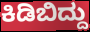
ಕಿಡಿಬಿದ್ದು